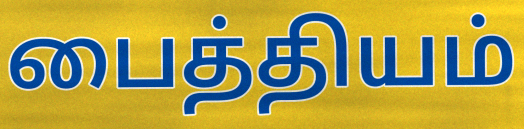
பைத்தியம்